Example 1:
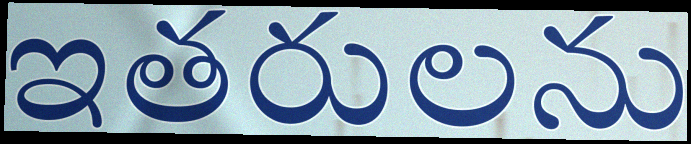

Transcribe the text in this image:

ఇతరులను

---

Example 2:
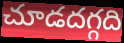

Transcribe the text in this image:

చూడదగ్గది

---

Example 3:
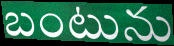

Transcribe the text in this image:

బంటును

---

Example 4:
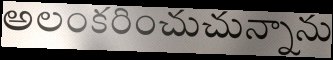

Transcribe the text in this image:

అలంకరించుచున్నాను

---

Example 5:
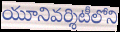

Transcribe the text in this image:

యూనివర్శిటీలోని